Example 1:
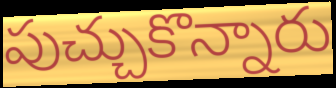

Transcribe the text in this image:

పుచ్చుకొన్నారు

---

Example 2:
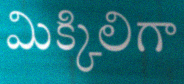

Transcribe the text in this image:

మిక్కిలిగా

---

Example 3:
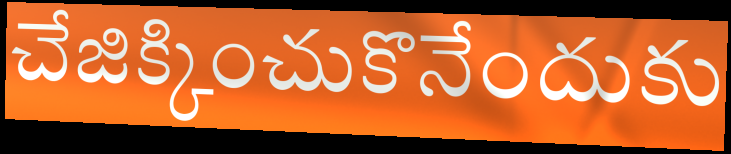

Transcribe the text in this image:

చేజిక్కించుకొనేందుకు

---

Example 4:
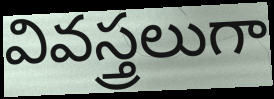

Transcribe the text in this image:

వివస్త్రలుగా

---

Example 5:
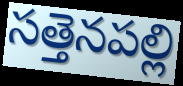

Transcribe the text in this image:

సత్తెనపల్లి